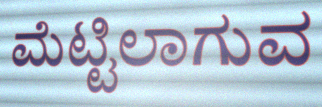
ಮೆಟ್ಟಿಲಾಗುವ